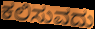
ಕಲಿಸುವದು